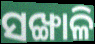
ସଙ୍ଖାଳି